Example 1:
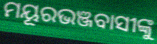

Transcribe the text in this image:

ମୟୂରଭଞ୍ଜବାସୀଙ୍କୁ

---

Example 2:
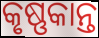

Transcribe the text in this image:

କୃଷ୍ଣକାନ୍ତ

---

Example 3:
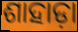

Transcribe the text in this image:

ଶାହାଡ଼ା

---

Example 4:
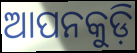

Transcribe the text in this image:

ଆପନକୁଡ଼ି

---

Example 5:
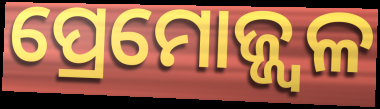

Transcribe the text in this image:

ପ୍ରେମୋଜ୍ଜ୍ୱଳ